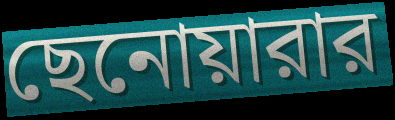
ছেনোয়ারার